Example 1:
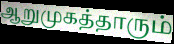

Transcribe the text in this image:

ஆறுமுகத்தாரும்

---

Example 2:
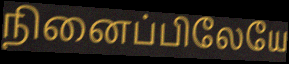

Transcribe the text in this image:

நினைப்பிலேயே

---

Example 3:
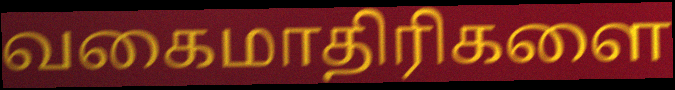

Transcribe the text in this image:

வகைமாதிரிகளை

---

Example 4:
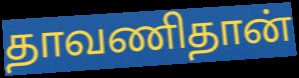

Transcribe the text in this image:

தாவணிதான்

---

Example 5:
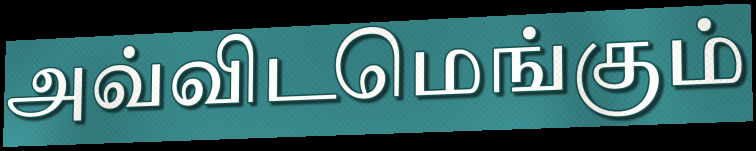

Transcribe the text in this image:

அவ்விடமெங்கும்